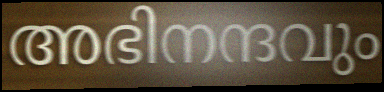
അഭിനന്ദവും